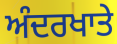
ਅੰਦਰਖਾਤੇ